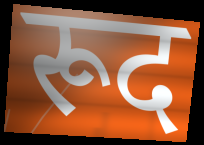
रूद